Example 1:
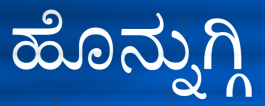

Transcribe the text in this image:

ಹೊನ್ನುಗ್ಗಿ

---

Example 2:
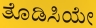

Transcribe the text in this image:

ತೊಡಿಸಿಯೇ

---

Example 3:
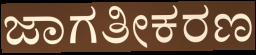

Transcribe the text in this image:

ಜಾಗತೀಕರಣ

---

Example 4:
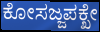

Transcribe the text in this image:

ಕೋಸಜ್ಜಪಕ್ಖೇ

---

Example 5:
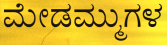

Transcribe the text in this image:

ಮೇಡಮ್ಮುಗಳ